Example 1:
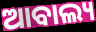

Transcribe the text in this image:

ଆବାଲ୍ୟ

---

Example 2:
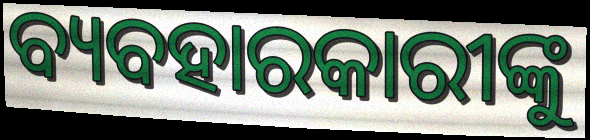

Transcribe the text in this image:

ବ୍ୟବହାରକାରୀଙ୍କୁ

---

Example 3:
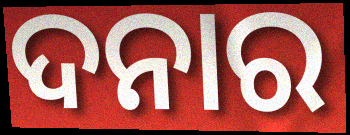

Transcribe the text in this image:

ଦନାର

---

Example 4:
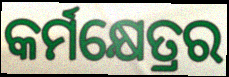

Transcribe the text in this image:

କର୍ମକ୍ଷେତ୍ରର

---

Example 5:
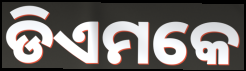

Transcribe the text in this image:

ଡିଏମକେ